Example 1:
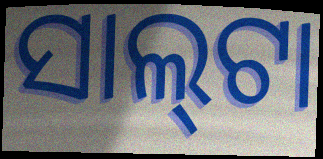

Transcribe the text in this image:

ସାଲ୍‌ଟା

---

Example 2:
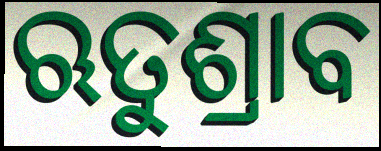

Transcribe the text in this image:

ଋତୁଶ୍ରାବ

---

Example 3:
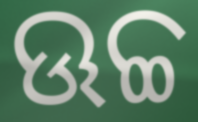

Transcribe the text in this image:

ଊଚ୍ଚ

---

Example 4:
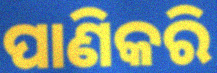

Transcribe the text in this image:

ପାଣିକରି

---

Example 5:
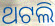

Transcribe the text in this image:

ଥଟଲି